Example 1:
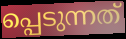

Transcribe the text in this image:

പ്പെടുന്നത്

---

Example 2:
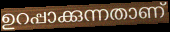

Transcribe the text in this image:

ഉറപ്പാക്കുന്നതാണ്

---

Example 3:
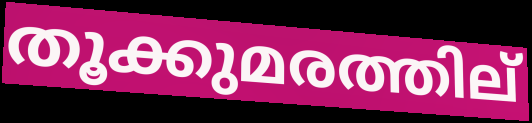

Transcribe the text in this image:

തൂക്കുമരത്തില്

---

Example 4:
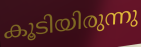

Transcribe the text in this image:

കൂടിയിരുന്നു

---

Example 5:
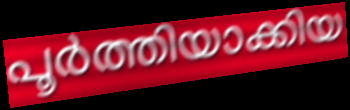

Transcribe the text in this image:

പൂർത്തിയാക്കിയ